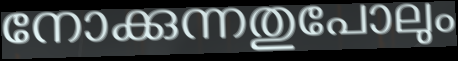
നോക്കുന്നതുപോലും